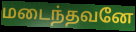
மடைந்தவனே